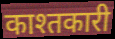
काश्तकारी